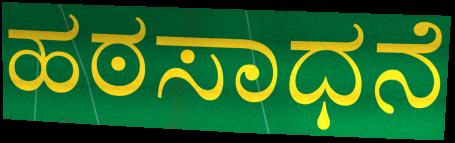
ಹಠಸಾಧನೆ